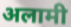
अलामी